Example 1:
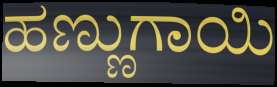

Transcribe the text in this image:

ಹಣ್ಣುಗಾಯಿ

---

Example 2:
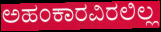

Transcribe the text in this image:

ಅಹಂಕಾರವಿರಲಿಲ್ಲ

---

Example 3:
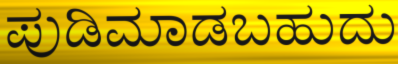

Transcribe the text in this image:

ಪುಡಿಮಾಡಬಹುದು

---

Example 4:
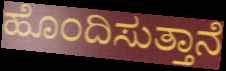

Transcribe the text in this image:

ಹೊಂದಿಸುತ್ತಾನೆ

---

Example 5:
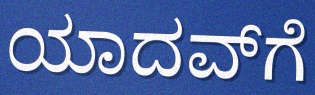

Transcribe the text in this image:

ಯಾದವ್‌ಗೆ